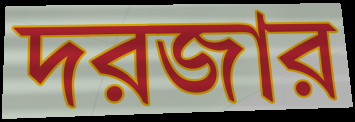
দরজার